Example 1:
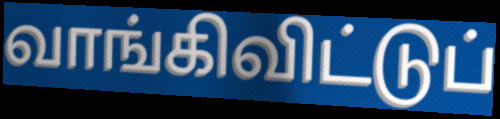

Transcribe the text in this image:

வாங்கிவிட்டுப்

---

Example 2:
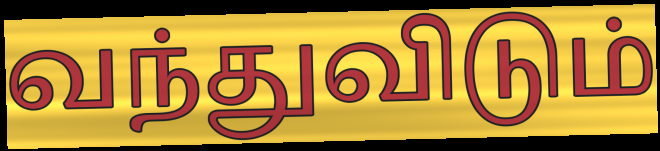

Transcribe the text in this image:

வந்துவிடும்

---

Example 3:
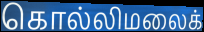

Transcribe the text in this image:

கொல்லிமலைக்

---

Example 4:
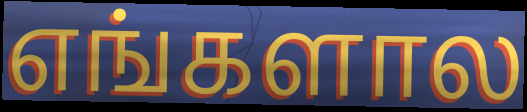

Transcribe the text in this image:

எங்களால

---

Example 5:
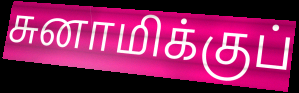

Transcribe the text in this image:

சுனாமிக்குப்